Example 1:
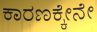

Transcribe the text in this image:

ಕಾರಣಕ್ಕೇನೇ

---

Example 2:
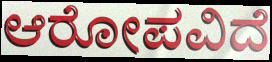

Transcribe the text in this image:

ಆರೋಪವಿದೆ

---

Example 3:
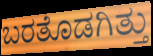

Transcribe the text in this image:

ಬರತೊಡಗಿತ್ತು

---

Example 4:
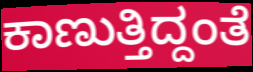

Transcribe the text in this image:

ಕಾಣುತ್ತಿದ್ದಂತೆ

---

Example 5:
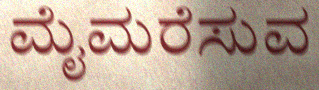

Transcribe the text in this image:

ಮೈಮರೆಸುವ